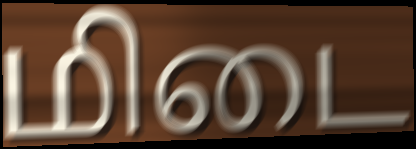
மிடை